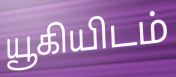
யூகியிடம்